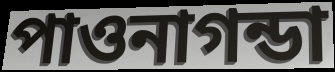
পাওনাগন্ডা